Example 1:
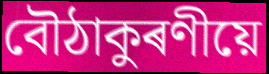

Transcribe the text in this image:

বৌঠাকুৰণীয়ে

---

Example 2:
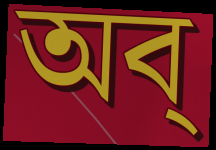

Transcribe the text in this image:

অব্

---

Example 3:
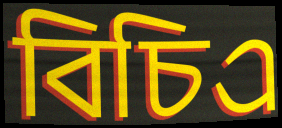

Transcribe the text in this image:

বিচিএ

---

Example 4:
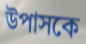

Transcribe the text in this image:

উপাসকে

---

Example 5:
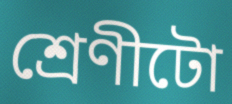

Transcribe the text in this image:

শ্ৰেণীটো